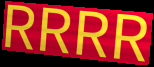
RRRR